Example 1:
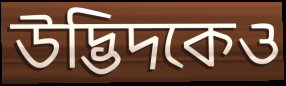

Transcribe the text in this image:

উদ্ভিদকেও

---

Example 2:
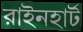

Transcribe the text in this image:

রাইনহার্ট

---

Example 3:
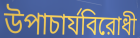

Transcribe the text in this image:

উপাচার্যবিরোধী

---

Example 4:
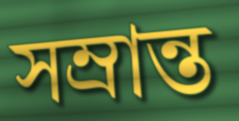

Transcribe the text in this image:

সম্রান্ত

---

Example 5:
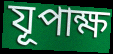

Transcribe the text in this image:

যূপাক্ষ